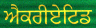
ਐਕਰੀਏਟਿਡ